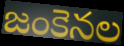
జంకెనల